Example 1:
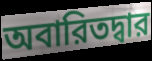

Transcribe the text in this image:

অবারিতদ্বার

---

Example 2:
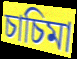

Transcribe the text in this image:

চাচিমা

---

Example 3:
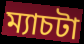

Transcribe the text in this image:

ম্যাচটা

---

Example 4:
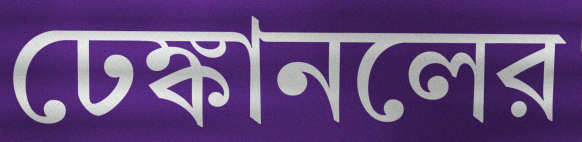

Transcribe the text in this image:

ঢেঙ্কানলের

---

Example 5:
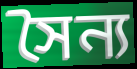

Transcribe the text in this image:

সৈন্য